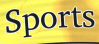
Sports